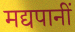
मद्यपानीं